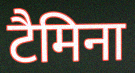
टैमिना